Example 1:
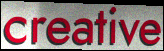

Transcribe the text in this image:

creative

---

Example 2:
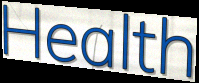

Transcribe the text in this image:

Health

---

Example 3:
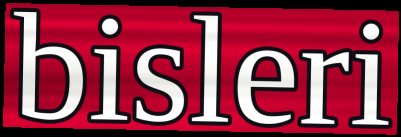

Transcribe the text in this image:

bisleri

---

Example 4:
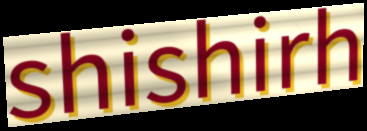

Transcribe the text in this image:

shishirh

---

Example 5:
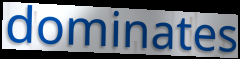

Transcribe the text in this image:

dominates